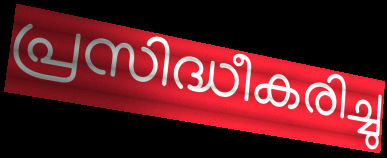
പ്രസിദ്ധീകരിച്ചു